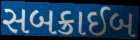
સબક્રાઈબ